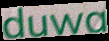
duwa